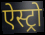
ऐस्ट्रो